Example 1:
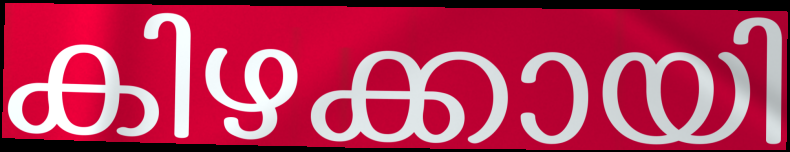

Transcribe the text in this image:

കിഴക്കായി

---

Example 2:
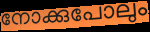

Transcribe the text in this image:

നോക്കുപോലും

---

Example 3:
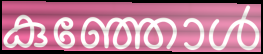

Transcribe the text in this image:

കുഞ്ഞോൾ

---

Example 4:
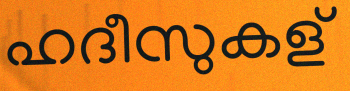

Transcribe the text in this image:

ഹദീസുകള്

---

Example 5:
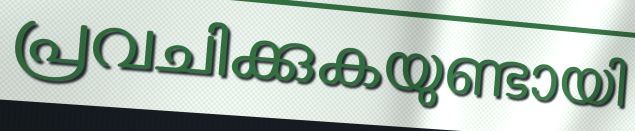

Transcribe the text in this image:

പ്രവചിക്കുകയുണ്ടായി